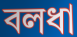
বলধা